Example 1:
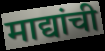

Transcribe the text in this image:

माद्यांची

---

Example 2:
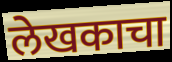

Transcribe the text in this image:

लेखकाचा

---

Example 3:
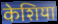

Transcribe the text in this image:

केशिया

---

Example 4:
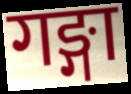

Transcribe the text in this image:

गङ्गा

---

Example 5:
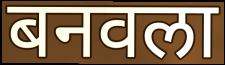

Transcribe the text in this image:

बनवला